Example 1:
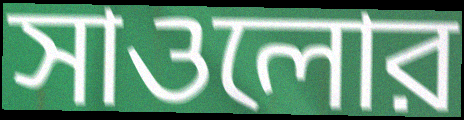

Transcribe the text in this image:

সাওলোর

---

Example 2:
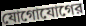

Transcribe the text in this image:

যোগোযোগের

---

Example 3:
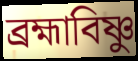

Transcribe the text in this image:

ব্রহ্মাবিষ্ণু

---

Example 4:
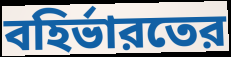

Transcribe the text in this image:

বহির্ভারতের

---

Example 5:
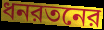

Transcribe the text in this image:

ধনরতনের